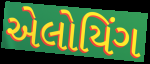
એલોયિંગ